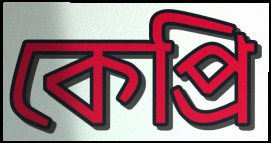
কেপ্রি